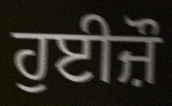
ਹੁਈਜ਼ੌ